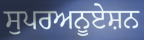
ਸੁਪਰਅਨੂਏਸ਼ਨ